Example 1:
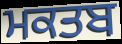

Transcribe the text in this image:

ਮਕਤਬ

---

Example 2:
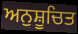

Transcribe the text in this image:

ਅਨੁਸ਼ੂਚਿਤ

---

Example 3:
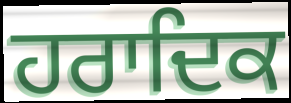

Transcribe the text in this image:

ਹਰਾਦਿਕ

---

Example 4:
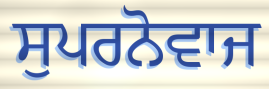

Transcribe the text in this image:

ਸੁਪਰਨੋਵਾਜ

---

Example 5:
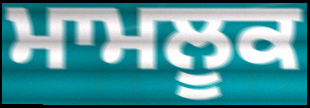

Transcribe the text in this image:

ਮਾਮਲੂਕ